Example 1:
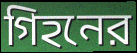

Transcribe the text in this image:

গিহনের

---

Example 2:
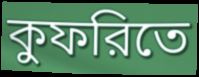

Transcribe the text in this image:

কুফরিতে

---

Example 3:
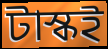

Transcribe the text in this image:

টাস্কই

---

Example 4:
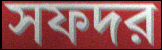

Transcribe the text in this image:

সফদর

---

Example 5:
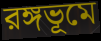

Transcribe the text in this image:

রঙ্গভূমে